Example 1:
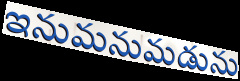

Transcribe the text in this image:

ఇనుమనుమడును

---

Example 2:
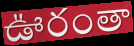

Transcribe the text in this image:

ఊరంతా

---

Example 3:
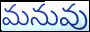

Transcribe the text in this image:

మనువు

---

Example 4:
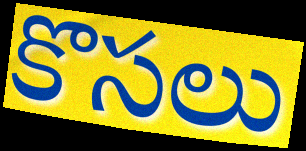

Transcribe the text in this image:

కొసలు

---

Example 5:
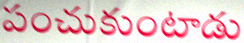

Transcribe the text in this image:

పంచుకుంటాడు